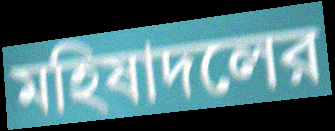
মহিষাদলের